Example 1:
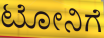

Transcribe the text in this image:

ಟೋನಿಗೆ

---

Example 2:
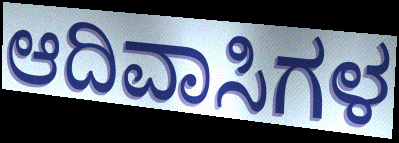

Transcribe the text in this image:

ಆದಿವಾಸಿಗಳ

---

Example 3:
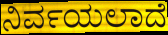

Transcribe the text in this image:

ನಿರ್ವಯಲಾದೆ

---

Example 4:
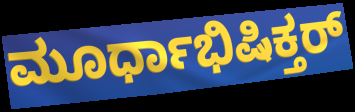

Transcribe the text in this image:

ಮೂರ್ಧಾಭಿಷಿಕ್ತರ್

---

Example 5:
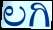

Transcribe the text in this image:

ಲಗಿ